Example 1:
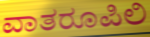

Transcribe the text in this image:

ವಾತರೂಪಿಲಿ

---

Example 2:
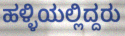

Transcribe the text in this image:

ಹಳ್ಳಿಯಲ್ಲಿದ್ದರು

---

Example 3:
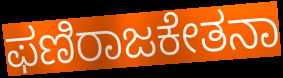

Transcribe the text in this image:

ಫಣಿರಾಜಕೇತನಾ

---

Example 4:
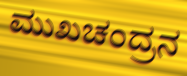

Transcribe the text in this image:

ಮುಖಚಂದ್ರನ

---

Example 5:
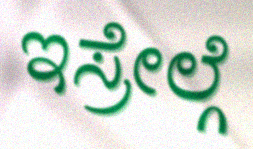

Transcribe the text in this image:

ಇಸ್ರೇಲ್ಗೆ